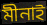
মীনাই